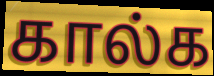
கால்க